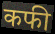
कफी